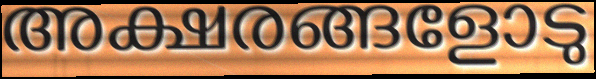
അക്ഷരങ്ങളോടു